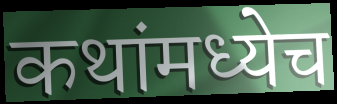
कथांमध्येच